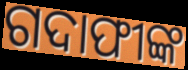
ଗଦାଫୀଙ୍କ